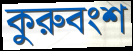
কুরুবংশ